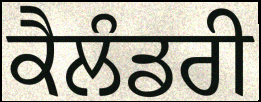
ਕੈਲੰਡਰੀ